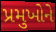
પ્રમુખોને